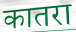
कातरा